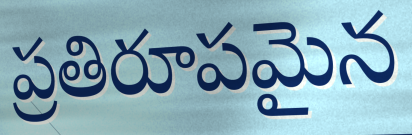
ప్రతిరూపమైన